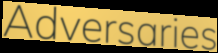
Adversaries